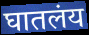
घातलंय